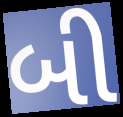
બી